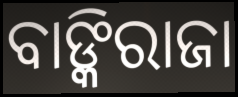
ବାଙ୍କିରାଜା